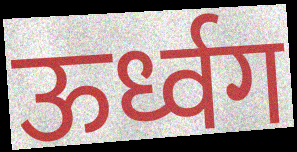
ऊर्ध्वग